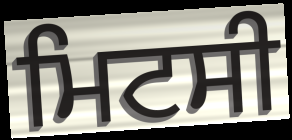
ਮਿਟਸੀ